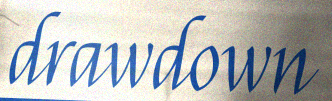
drawdown